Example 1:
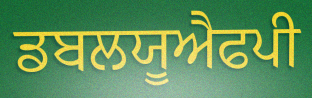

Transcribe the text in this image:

ਡਬਲਯੂਐਫਪੀ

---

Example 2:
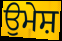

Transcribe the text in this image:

ਉਮੇਸ਼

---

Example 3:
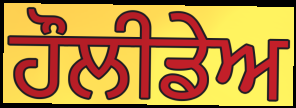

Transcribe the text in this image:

ਹੌਲੀਡੇਅ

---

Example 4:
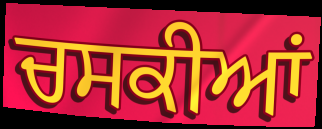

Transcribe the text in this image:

ਚਸਕੀਆਂ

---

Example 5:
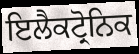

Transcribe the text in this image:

ਇਲੈਕਟ੍ਰੋਨਿਕ